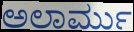
ಅಲಾರ್ಮು